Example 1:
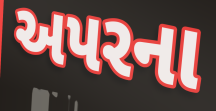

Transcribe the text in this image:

અપરના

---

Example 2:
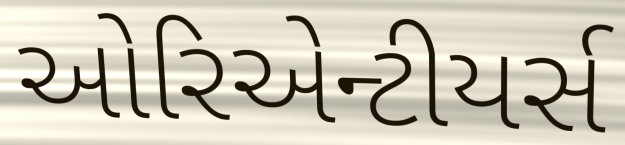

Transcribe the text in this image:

ઓરિએન્ટીયર્સ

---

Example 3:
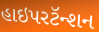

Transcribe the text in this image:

હાઇપરટૅન્શન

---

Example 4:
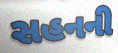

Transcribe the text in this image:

સહનની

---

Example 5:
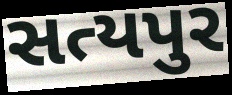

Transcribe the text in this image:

સત્યપુર